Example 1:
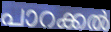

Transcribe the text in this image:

പാറക്കൽ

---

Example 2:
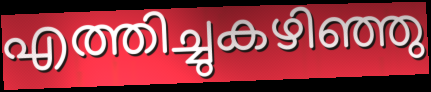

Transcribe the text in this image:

എത്തിച്ചുകഴിഞ്ഞു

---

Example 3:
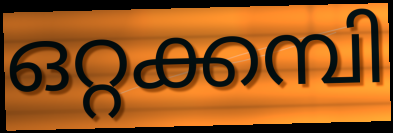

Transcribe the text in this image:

ഒറ്റക്കമ്പി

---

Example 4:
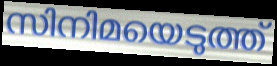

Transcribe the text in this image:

സിനിമയെടുത്ത്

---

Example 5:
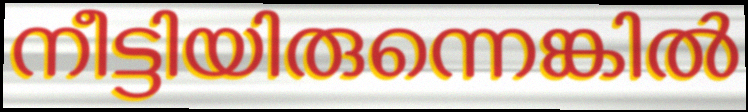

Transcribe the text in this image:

നീട്ടിയിരുന്നെങ്കിൽ